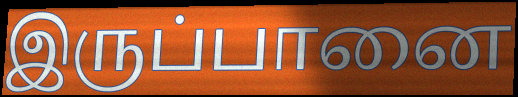
இருப்பானை